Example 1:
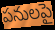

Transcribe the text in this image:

పనులపై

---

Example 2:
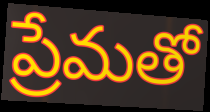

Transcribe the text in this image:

ప్రేమతో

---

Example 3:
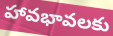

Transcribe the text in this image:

హావభావలకు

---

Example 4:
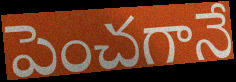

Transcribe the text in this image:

పెంచగానే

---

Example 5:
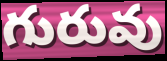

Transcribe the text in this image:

గురువు